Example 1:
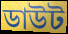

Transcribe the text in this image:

ডাউট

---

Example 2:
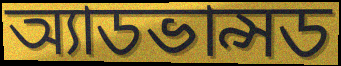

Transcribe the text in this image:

অ্যাডভান্সড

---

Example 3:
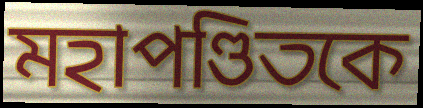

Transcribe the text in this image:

মহাপণ্ডিতকে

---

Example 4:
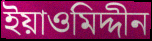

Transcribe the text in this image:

ইয়াওমিদ্দীন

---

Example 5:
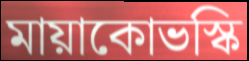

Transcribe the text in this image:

মায়াকোভস্কি